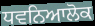
ਧਵਨਿਆਲੋਕ